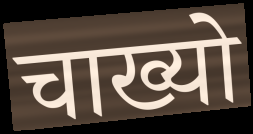
चाख्यो